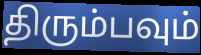
திரும்பவும்